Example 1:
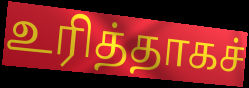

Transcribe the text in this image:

உரித்தாகச்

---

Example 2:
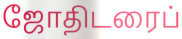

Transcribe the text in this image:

ஜோதிடரைப்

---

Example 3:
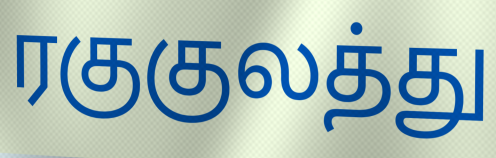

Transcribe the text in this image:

ரகுகுலத்து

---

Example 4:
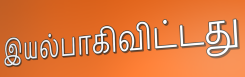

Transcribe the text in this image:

இயல்பாகிவிட்டது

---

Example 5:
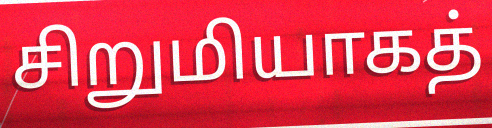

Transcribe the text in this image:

சிறுமியாகத்